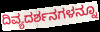
ದಿವ್ಯದರ್ಶನಗಳನ್ನೂ